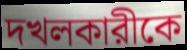
দখলকারীকে